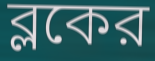
ব্লকের